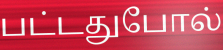
பட்டதுபோல்